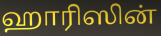
ஹாரிஸின்